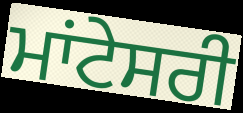
ਮਾਂਟੇਸਰੀ